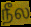
நீல